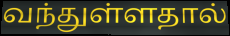
வந்துள்ளதால்